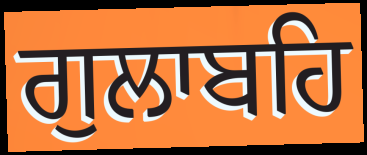
ਗੁਲਾਬਹਿ